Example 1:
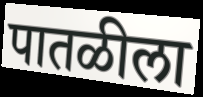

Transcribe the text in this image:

पातळीला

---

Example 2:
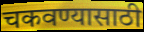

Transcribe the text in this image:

चकवण्यासाठी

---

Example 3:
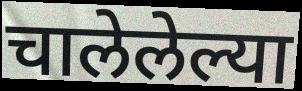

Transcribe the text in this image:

चालेलेल्या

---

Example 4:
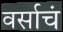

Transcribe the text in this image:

वर्साचं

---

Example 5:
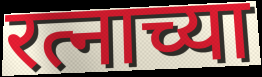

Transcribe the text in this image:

रत्नाच्या